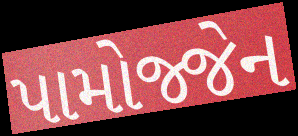
પામોજ્જેન